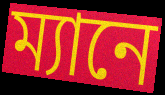
ম্যানে